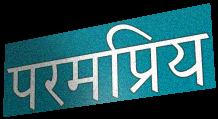
परमप्रिय